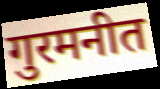
गुरमनीत